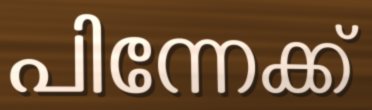
പിന്നേക്ക്